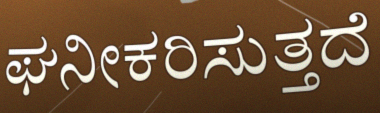
ಘನೀಕರಿಸುತ್ತದೆ